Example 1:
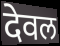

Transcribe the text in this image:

देवल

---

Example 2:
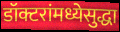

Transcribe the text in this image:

डॉक्टरांमध्येसुद्धा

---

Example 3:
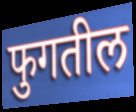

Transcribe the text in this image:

फुगतील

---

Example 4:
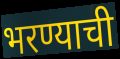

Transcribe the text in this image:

भरण्याची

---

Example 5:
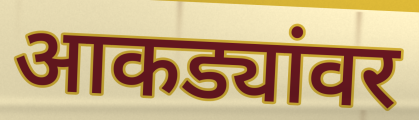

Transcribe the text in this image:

आकड्यांवर